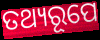
ତଥ୍ୟରୂପେ